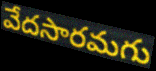
వేదసారమగు